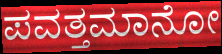
ಪವತ್ತಮಾನೋ